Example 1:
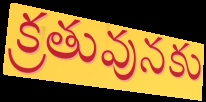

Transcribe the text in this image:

క్రతువునకు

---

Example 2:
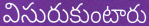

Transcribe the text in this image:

విసురుకుంటారు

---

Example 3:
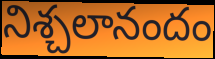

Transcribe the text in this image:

నిశ్చలానందం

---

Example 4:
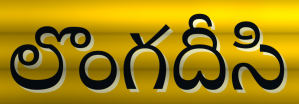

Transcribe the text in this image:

లొంగదీసి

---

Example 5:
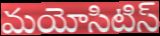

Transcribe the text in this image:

మయోసిటిస్